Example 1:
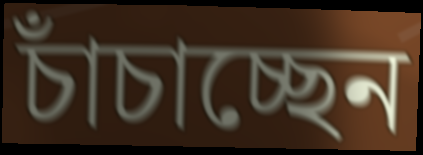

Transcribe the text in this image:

চাঁচাচ্ছেন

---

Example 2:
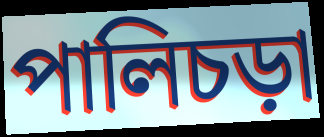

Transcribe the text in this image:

পালিচড়া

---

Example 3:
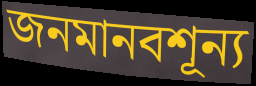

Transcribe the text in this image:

জনমানবশূন্য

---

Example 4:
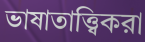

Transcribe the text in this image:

ভাষাতাত্ত্বিকরা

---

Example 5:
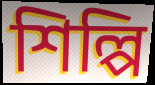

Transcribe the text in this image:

শিল্পি